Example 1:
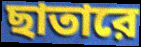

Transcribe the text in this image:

ছাতারে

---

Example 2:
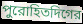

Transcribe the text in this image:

পুরোহিতদিগের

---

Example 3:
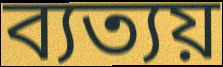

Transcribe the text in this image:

ব্যত্যয়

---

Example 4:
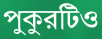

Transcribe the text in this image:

পুকুরটিও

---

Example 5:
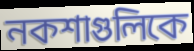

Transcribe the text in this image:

নকশাগুলিকে